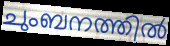
ചുംബനത്തിൽ